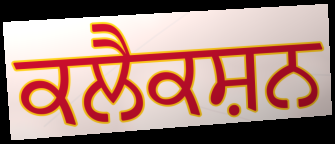
ਕਲੈਕਸ਼ਨ